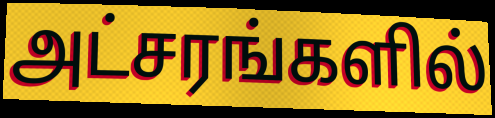
அட்சரங்களில்